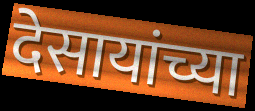
देसायांच्या